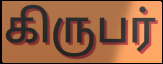
கிருபர்